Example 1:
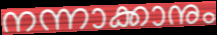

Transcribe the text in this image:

നന്നാക്കാനും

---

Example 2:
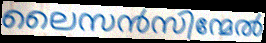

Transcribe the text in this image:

ലൈസൻസിന്മേൽ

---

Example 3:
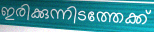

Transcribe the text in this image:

ഇരിക്കുന്നിടത്തേക്ക്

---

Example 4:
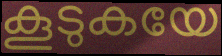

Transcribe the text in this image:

കൂടുകയേ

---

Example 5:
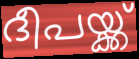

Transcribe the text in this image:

ദീപയ്ക്ക്